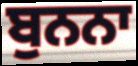
ਬੁਨਨਾ